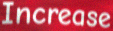
Increase